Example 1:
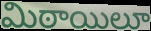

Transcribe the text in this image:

మిఠాయిలూ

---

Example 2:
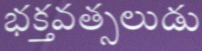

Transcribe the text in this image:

భక్తవత్సలుడు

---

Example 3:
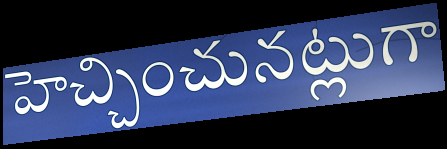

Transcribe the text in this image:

హెచ్చించునట్లుగా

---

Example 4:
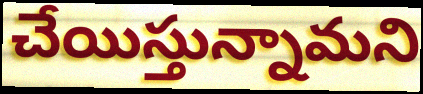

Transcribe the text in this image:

చేయిస్తున్నామని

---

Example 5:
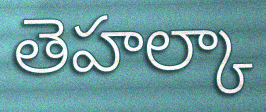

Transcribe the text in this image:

తెహల్కా